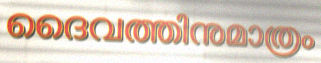
ദൈവത്തിനുമാത്രം